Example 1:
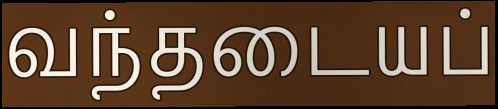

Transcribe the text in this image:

வந்தடையப்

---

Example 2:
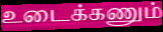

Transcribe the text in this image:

உடைக்கணும்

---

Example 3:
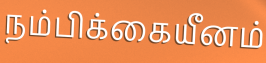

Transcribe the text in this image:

நம்பிக்கையீனம்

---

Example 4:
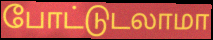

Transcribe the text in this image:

போட்டுடலாமா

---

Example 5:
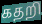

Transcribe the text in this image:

கதறி